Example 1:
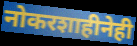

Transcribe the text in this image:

नोकरशाहीनेही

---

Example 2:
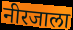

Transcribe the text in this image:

नीरजाला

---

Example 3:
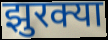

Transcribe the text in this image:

झुरक्या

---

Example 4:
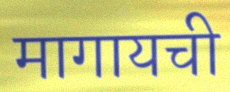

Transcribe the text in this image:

मागायची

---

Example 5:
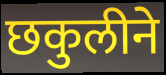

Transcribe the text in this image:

छकुलीने